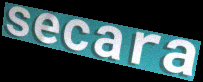
secara